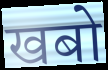
खबो